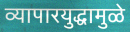
व्यापारयुद्धामुळे